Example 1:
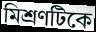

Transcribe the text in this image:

মিশ্রণটিকে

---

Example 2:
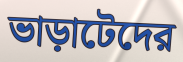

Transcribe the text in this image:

ভাড়াটেদের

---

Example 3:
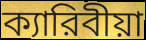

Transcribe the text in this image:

ক্যারিবীয়া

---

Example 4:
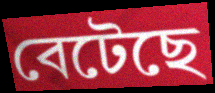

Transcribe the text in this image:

বেটেছে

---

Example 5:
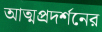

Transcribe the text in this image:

আত্মপ্রদর্শনের